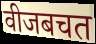
वीजबचत